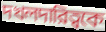
দখলদারিত্বকে